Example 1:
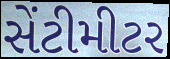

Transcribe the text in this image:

સેંટીમીટર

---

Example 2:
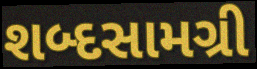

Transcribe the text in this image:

શબ્દસામગ્રી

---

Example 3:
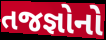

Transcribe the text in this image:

તજજ્ઞોનો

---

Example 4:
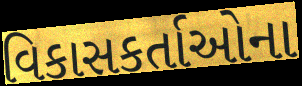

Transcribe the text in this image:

વિકાસકર્તાઓના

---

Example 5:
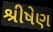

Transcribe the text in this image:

શ્રીષેણ